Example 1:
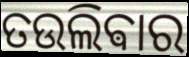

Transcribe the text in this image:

ତଉଲିଵାର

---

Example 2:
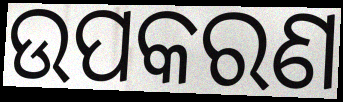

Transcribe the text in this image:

ଉପକରଣ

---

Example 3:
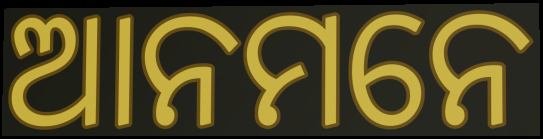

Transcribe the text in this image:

ଆନମନେ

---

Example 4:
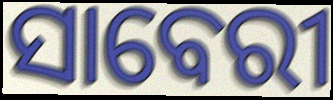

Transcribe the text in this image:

ସାବେରୀ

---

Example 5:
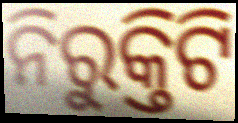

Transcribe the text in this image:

ନିରୁକ୍ତିଟି